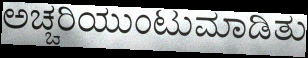
ಅಚ್ಚರಿಯುಂಟುಮಾಡಿತು